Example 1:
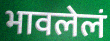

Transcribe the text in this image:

भावलेलं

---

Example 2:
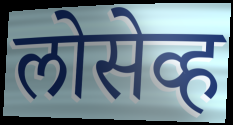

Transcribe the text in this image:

लोसेव्ह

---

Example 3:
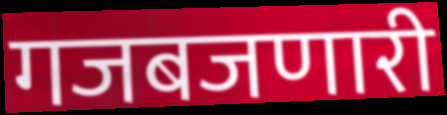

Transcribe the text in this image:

गजबजणारी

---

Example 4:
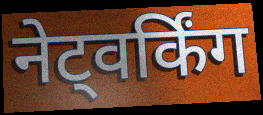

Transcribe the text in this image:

नेट्वर्किंग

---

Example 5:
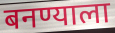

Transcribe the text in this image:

बनण्याला